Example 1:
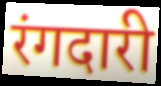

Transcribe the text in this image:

रंगदारी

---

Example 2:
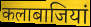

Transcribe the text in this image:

कलाबाजियां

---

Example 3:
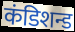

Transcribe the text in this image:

कंडिशन्ड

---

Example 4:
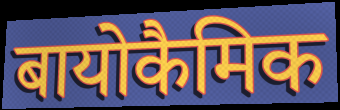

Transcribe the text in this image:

बायोकैमिक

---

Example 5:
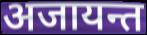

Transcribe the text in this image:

अजायन्त